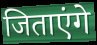
जिताएंगे